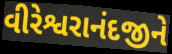
વીરેશ્વરાનંદજીને